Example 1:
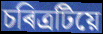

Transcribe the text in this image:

চৰিত্ৰটিয়ে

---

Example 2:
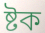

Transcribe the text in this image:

ষ্টক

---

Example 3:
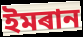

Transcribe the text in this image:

ইমৰান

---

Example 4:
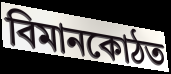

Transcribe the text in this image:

বিমানকোঠত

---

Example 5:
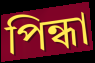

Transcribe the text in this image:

পিন্ধা